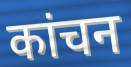
कांचन